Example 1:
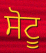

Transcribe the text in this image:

ਸੋਟੂ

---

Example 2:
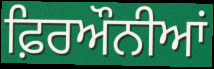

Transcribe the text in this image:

ਫ਼ਿਰਔਨੀਆਂ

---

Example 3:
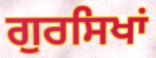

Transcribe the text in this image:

ਗੁਰਸਿਖਾਂ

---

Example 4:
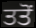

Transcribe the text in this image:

ਤਤੋਂ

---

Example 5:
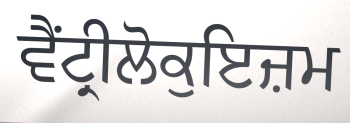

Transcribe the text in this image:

ਵੈਂਟ੍ਰੀਲੋਕੁਇਜ਼ਮ